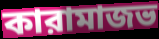
কারামাজভ